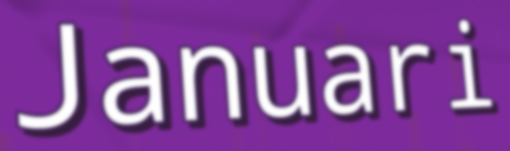
Januari